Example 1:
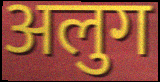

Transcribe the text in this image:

अलुग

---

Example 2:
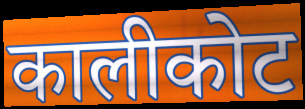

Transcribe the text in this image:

कालीकोट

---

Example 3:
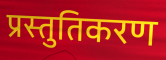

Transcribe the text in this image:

प्रस्तुतिकरण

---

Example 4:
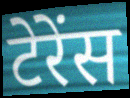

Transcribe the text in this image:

टेरेंस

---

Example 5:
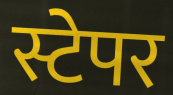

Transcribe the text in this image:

स्टेपर